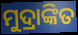
ମୁଦ୍ରାଙ୍କିତ